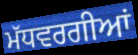
ਮੱਧਵਰਗੀਆਂ